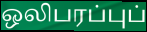
ஒலிபரப்புப்